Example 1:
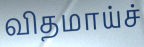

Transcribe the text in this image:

விதமாய்ச்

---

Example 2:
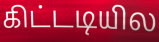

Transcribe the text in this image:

கிட்டடியில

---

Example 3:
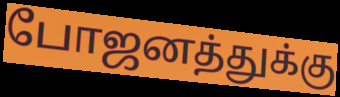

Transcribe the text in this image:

போஜனத்துக்கு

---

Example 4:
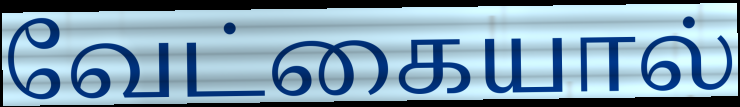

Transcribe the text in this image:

வேட்கையால்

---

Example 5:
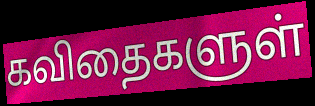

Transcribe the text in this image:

கவிதைகளுள்